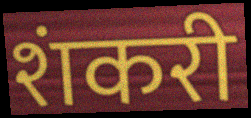
शंकरी